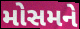
મોસમને